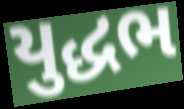
યુદ્ધભ